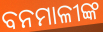
ବନମାଳୀଙ୍କ